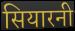
सियारनी